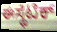
ಈಸ್ಥೆಟಿಕ್